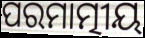
ପରମାତ୍ମୀୟ